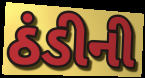
ઠંડીની